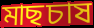
মাছচাষ